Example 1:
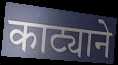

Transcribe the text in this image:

काट्याने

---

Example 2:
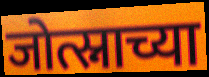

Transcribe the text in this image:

जोत्स्नाच्या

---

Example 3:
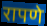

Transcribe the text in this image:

रापणे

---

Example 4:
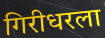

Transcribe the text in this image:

गिरीधरला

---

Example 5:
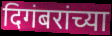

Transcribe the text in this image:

दिगंबरांच्या